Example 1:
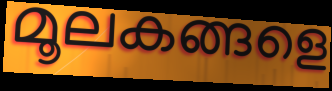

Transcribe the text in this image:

മൂലകങ്ങളെ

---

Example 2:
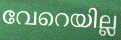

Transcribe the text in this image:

വേറെയില്ല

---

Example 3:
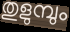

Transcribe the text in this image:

തുളുമ്പും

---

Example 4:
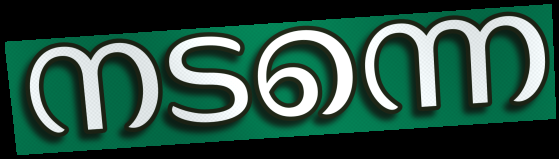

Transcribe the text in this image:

നടന്നെ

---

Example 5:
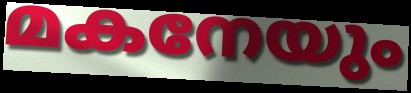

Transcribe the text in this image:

മകനേയും